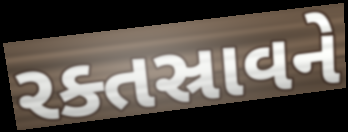
રક્તસ્રાવને